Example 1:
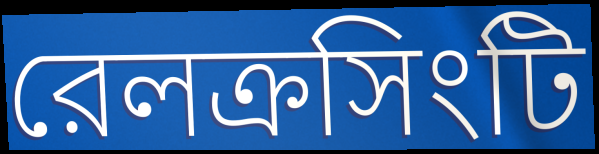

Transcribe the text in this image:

রেলক্রসিংটি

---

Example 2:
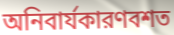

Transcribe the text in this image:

অনিবার্যকারণবশত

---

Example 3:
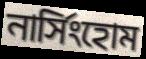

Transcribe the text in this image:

নার্সিংহোম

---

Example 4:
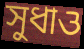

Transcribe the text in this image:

সুধাও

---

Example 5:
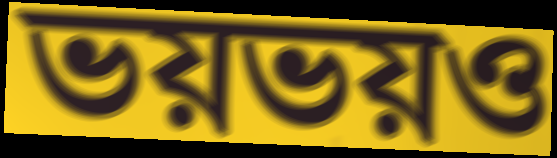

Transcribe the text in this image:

ভয়ভয়ও